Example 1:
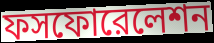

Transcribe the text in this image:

ফসফোরেলেশন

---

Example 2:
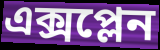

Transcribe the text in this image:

এক্সপ্লেন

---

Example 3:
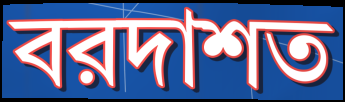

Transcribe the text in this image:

বরদাশত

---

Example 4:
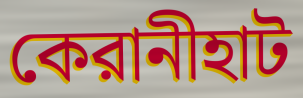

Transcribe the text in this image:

কেরানীহাট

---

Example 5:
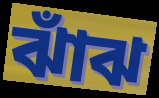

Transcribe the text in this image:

ঝাঁঝ